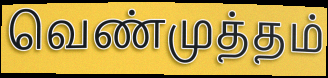
வெண்முத்தம்